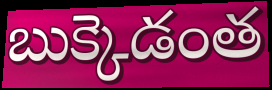
బుక్కెడంత